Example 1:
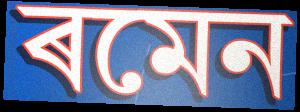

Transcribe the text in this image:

ৰমেন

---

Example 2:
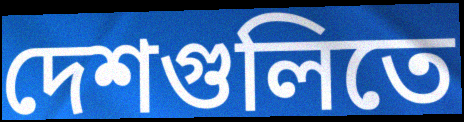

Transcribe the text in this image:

দেশগুলিতে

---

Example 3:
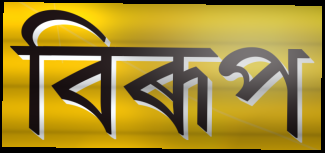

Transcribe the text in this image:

বিৰূপ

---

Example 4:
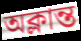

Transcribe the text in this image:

অক্লান্ত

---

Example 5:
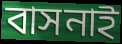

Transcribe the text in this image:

বাসনাই